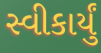
સ્વીકાર્યું